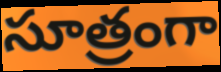
సూత్రంగా